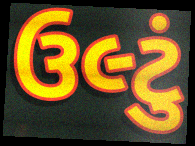
ઉલ્ટું